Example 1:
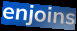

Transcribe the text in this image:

enjoins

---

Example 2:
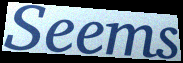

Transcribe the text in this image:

Seems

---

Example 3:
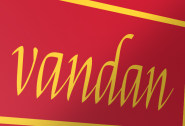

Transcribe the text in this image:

vandan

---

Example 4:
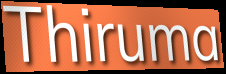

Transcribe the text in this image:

Thiruma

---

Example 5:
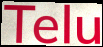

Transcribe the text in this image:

Telu